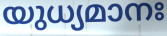
യുധ്യമാനഃ